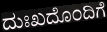
ದುಃಖದೊಂದಿಗೆ